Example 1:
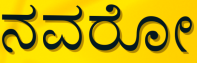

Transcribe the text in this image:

ನವರೋ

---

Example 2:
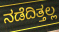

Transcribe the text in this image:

ನಡೆದಿತ್ತಲ್ಲ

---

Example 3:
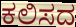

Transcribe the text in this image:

ಕಲಿಸದ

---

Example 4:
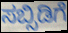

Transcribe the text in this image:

ಸಬ್ಸಿಡಿಗೆ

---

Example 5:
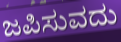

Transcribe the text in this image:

ಜಪಿಸುವದು